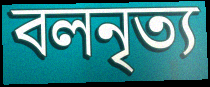
বলনৃত্য